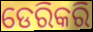
ଡେରିକରି